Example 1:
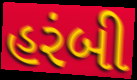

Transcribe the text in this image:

હરંબી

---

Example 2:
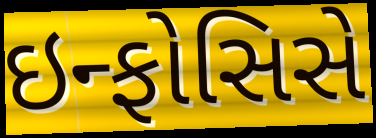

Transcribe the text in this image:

ઇન્ફોસિસે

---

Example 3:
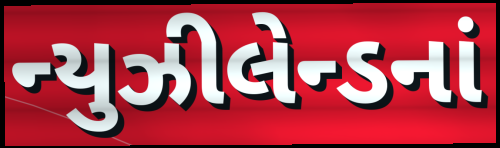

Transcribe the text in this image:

ન્યુઝીલેન્ડનાં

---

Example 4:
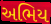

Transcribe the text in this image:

અભિય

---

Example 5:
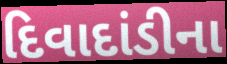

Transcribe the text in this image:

દિવાદાંડીના